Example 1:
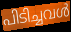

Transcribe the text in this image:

പിടിച്ചവൾ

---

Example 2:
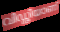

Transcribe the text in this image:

വിഡ്ഢിയാണ്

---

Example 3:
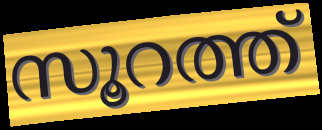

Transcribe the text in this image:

സൂറത്ത്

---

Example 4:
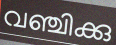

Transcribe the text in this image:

വഞ്ചിക്കു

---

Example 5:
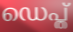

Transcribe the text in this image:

ഡെപ്ത്